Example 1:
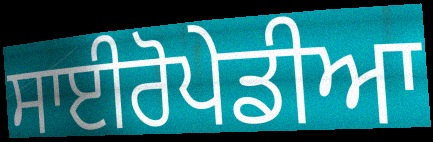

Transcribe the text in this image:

ਸਾਈਰੋਪੇਡੀਆ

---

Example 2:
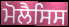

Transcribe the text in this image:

ਮੋਲੈਸਿਸ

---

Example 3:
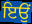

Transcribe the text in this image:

ਇਉਂ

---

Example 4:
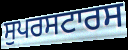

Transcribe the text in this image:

ਸੁਪਰਸਟਾਰਸ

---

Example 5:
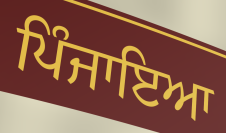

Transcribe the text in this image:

ਪਿੰਜਾਇਆ